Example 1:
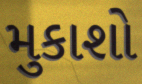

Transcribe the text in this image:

મુકાશો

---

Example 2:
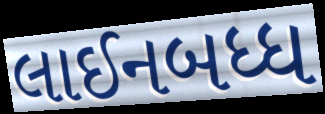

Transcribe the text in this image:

લાઈનબધ્ધ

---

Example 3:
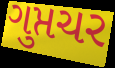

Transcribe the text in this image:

ગુપ્તચર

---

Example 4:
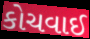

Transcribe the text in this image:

કોચવાઈ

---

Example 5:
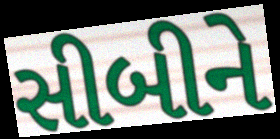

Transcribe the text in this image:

સીબીને